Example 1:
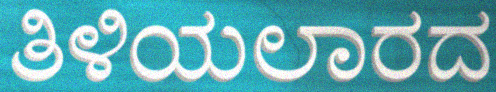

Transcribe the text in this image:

ತಿಳಿಯಲಾರದ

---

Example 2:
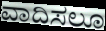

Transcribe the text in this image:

ವಾದಿಸಲೂ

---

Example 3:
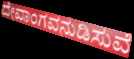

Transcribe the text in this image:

ದೇವಾಂಗವನುಡಿಸುವೆ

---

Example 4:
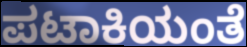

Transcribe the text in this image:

ಪಟಾಕಿಯಂತೆ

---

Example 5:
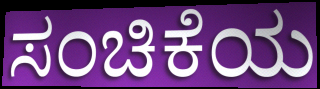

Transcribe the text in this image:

ಸಂಚಿಕೆಯ